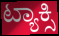
ಟ್ಯಾಕ್ಸಿ